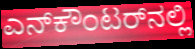
ಎನ್‌ಕೌಂಟರ್‌ನಲ್ಲಿ